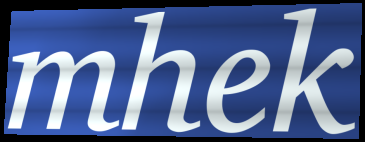
mhek